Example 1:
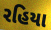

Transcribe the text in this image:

રહિયા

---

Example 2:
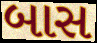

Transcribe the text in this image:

બાસ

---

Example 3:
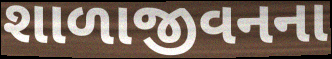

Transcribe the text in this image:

શાળાજીવનના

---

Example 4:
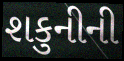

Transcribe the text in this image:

શકુનીની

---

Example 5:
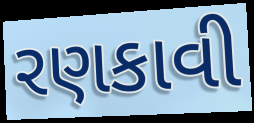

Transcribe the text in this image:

રણકાવી